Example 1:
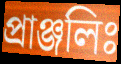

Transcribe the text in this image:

প্রাঞ্জলিঃ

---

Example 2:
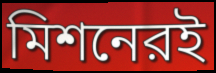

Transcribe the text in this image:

মিশনেরই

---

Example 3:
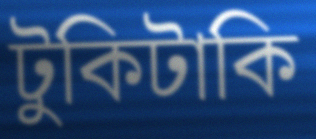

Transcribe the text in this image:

টুকিটাকি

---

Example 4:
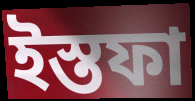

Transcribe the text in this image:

ইস্তফা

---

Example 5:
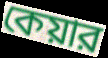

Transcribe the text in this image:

কেয়ার